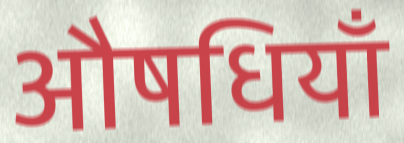
औषधियाँ